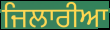
ਜਿਲਾਰੀਆ